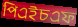
পিএইচএফ